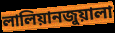
লালিয়ানজুয়ালা